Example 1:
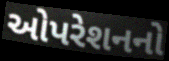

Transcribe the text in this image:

ઓપરેશનનો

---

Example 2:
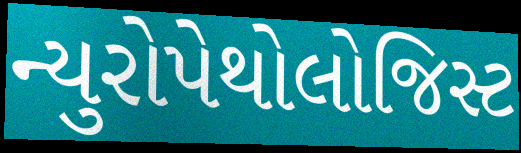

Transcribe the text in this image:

ન્યુરોપેથોલોજિસ્ટ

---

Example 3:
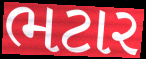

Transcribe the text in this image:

ભટાર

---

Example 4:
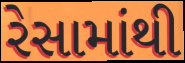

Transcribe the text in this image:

રેસામાંથી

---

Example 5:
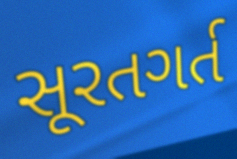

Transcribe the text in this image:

સૂરતગર્ત